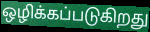
ஒழிக்கப்படுகிறது